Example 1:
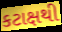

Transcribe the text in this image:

કટાક્ષથી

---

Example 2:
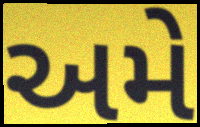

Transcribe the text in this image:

અમે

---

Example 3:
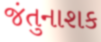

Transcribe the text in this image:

જંતુનાશક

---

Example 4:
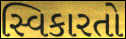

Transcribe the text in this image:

સ્વિકારતો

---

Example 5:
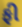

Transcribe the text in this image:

ફી